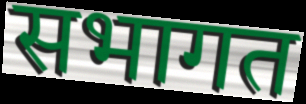
सभागत